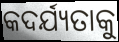
କଦର୍ଯ୍ୟତାକୁ